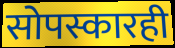
सोपस्कारही